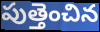
పుత్తెంచిన